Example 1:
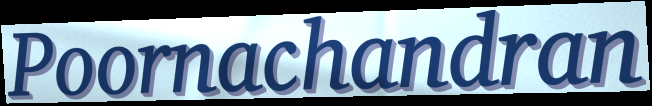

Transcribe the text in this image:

Poornachandran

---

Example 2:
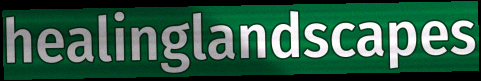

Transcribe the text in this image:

healinglandscapes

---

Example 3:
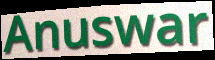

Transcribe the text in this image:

Anuswar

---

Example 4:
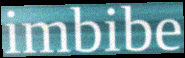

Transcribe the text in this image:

imbibe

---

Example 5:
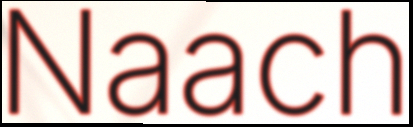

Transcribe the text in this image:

Naach